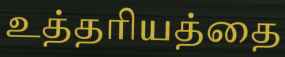
உத்தரியத்தை